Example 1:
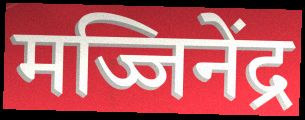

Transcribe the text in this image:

मज्जिनेंद्र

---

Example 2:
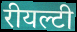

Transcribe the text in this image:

रीयल्टी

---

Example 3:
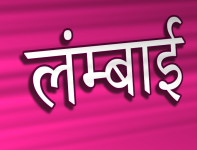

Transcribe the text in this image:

लंम्बाई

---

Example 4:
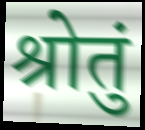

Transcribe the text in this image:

श्रोतुं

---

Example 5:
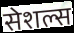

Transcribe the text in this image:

सेशल्स